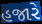
હજારે